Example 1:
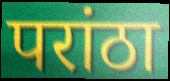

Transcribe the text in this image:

परांठा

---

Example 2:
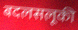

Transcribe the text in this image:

बदलसलूकी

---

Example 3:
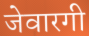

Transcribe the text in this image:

जेवारगी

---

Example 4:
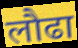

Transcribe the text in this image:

लौढा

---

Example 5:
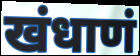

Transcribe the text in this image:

खंधाणं